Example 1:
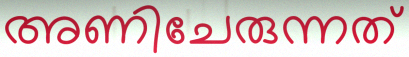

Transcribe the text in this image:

അണിചേരുന്നത്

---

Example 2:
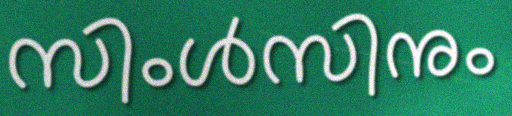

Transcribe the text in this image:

സിംൾസിനും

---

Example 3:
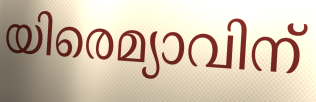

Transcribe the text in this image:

യിരെമ്യാവിന്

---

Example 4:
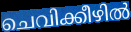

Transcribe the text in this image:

ചെവിക്കീഴിൽ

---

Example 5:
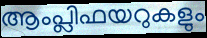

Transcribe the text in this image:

ആംപ്ലിഫയറുകളും